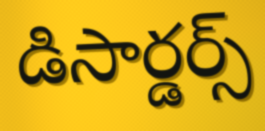
డిసార్డర్స్